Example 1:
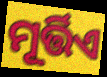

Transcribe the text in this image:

ମୂର୍ତ୍ତିଏ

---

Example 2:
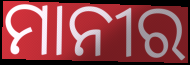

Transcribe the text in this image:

ମାନୀର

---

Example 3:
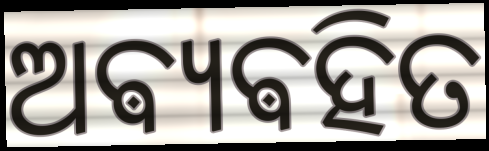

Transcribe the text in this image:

ଅଵ୍ୟଵହିତ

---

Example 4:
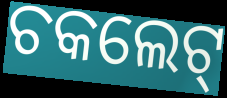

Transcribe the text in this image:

ଚକଲେଟ୍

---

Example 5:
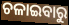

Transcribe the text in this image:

ଚଳାଇବାରୁ